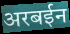
अरबईन